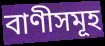
বাণীসমূহ